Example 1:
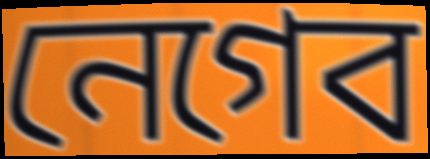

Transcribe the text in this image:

নেগেব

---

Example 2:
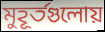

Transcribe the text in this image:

মুহূর্তগুলোয়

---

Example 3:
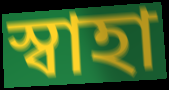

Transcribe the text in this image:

স্বাহা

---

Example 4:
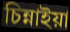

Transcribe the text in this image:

চিন্নাইয়া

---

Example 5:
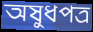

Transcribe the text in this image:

অষুধপত্র